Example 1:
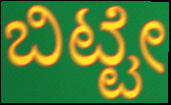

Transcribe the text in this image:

ಬಿಟ್ಟೇ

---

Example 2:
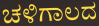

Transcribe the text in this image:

ಚಳಿಗಾಲದ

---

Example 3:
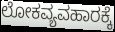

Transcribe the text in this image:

ಲೋಕವ್ಯವಹಾರಕ್ಕೆ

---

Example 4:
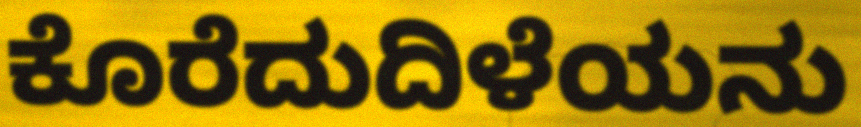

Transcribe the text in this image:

ಕೊರೆದುದಿಳೆಯನು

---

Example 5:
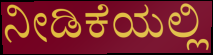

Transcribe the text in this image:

ನೀಡಿಕೆಯಲ್ಲಿ